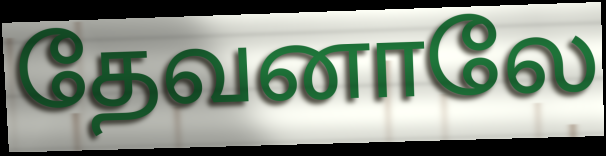
தேவனாலே